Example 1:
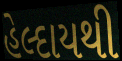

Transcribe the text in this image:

હેલ્દાયથી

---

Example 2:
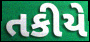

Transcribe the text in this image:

તકીયે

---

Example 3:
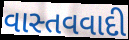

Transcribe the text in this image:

વાસ્તવવાદી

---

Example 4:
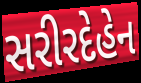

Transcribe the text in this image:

સરીરદેહેન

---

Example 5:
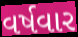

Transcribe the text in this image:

વર્ષવાર